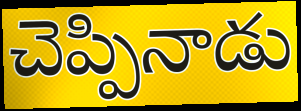
చెప్పినాడు